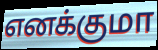
எனக்குமா